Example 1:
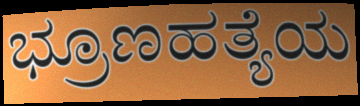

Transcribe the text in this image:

ಭ್ರೂಣಹತ್ಯೆಯ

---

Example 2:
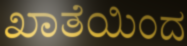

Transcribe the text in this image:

ಖಾತೆಯಿಂದ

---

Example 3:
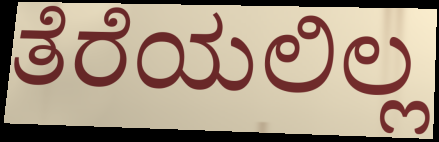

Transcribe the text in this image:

ತೆರೆಯಲಿಲ್ಲ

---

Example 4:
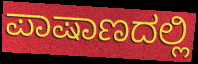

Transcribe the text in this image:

ಪಾಷಾಣದಲ್ಲಿ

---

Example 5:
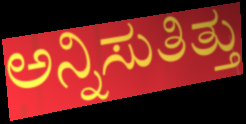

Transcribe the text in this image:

ಅನ್ನಿಸುತಿತ್ತು